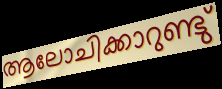
ആലോചിക്കാറുണ്ടു്